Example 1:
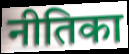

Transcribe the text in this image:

नीतिका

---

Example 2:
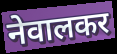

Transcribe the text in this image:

नेवालकर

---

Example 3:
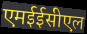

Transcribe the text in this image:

एमईईसीएल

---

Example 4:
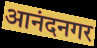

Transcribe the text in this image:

आनंदनगर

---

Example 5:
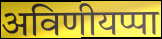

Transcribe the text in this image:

अविणीयप्पा